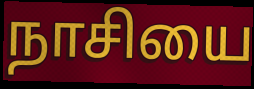
நாசியை